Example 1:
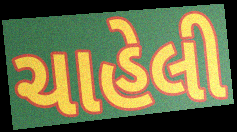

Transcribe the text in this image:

ચાહેલી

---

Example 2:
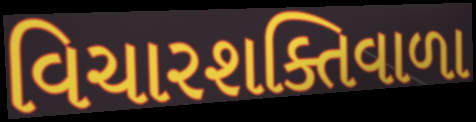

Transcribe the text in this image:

વિચારશક્તિવાળા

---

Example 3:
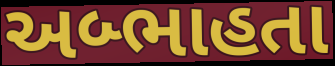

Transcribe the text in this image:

અબ્ભાહતા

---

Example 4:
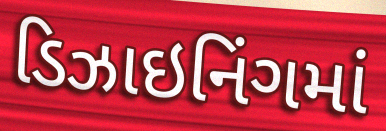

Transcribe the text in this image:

ડિઝાઇનિંગમાં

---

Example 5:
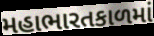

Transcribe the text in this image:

મહાભારતકાળમાં